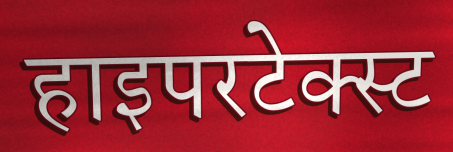
हाइपरटेक्स्ट